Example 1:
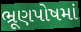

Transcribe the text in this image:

ભ્રૂણપોષમાં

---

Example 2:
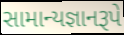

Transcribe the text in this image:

સામાન્યજ્ઞાનરૂપે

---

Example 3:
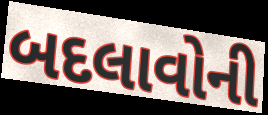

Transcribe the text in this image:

બદલાવોની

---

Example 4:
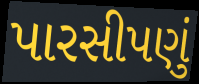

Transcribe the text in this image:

પારસીપણું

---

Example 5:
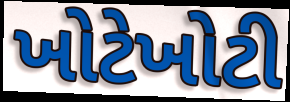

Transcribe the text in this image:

ખોટેખોટી